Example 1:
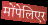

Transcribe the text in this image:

मोंपेलिएर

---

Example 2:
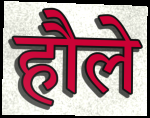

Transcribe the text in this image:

हौले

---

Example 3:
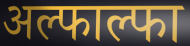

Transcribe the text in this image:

अल्फाल्फा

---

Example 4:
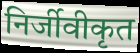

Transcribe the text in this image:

निर्जीवीकृत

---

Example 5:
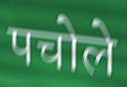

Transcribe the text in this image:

पचोले